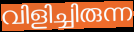
വിളിച്ചിരുന്ന